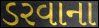
ડરવાના